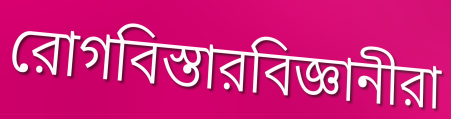
রোগবিস্তারবিজ্ঞানীরা